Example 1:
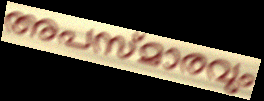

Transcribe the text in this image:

അപസ്മാരവും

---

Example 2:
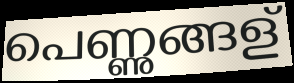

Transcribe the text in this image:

പെണ്ണുങ്ങള്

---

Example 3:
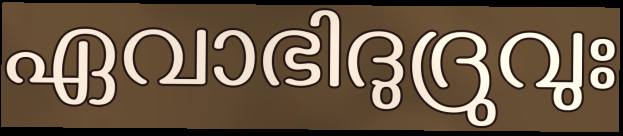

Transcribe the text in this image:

ഏവാഭിദുദ്രുവുഃ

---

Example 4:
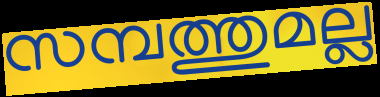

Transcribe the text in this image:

സമ്പത്തുമല്ല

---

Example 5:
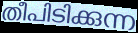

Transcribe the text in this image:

തീപിടിക്കുന്ന